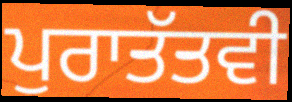
ਪੁਰਾਤੱਤਵੀ